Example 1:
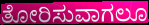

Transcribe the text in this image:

ತೋರಿಸುವಾಗಲೂ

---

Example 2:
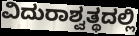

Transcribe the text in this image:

ವಿದುರಾಶ್ವತ್ಥದಲ್ಲಿ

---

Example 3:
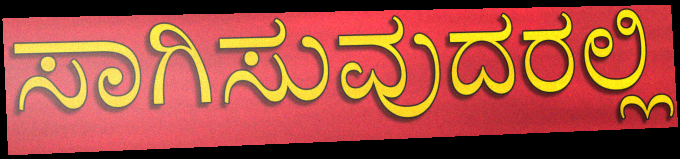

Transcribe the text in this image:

ಸಾಗಿಸುವುದರಲ್ಲಿ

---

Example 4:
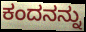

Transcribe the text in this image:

ಕಂದನನ್ನು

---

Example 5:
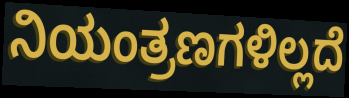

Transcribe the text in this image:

ನಿಯಂತ್ರಣಗಳಿಲ್ಲದೆ